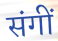
संगीं